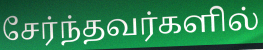
சேர்ந்தவர்களில்